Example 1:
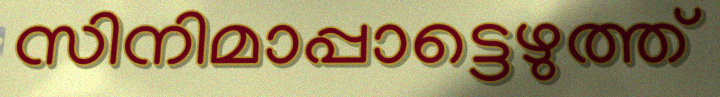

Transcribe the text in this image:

സിനിമാപ്പാട്ടെഴുത്ത്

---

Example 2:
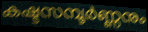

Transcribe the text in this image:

കഷ്ടസമ്പൂർണ്ണനും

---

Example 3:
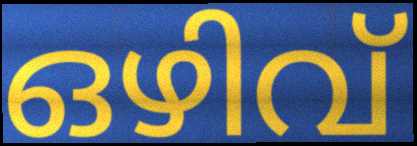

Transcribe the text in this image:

ഒഴിവ്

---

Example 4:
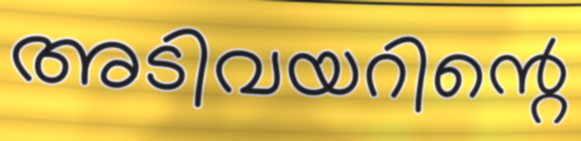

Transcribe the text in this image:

അടിവയറിന്റെ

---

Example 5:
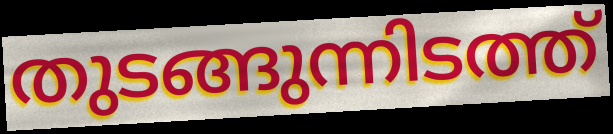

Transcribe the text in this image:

തുടങ്ങുന്നിടത്ത്